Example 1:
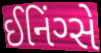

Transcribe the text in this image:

ઈનિંગ્સે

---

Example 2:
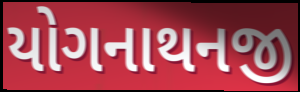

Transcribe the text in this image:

યોગનાથનજી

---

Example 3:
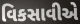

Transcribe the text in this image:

વિકસાવીએ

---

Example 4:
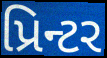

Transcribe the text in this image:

પ્રિન્ટર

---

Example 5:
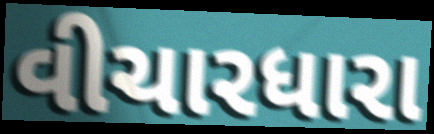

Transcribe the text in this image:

વીચારધારા